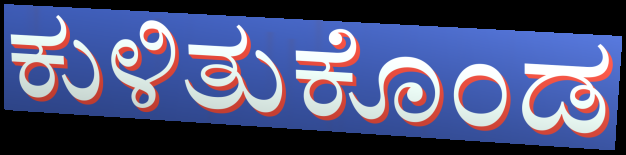
ಕುಳಿತುಕೊಂಡ